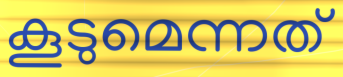
കൂടുമെന്നത്